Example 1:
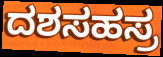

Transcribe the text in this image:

ದಶಸಹಸ್ರ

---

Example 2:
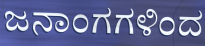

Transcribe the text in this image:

ಜನಾಂಗಗಳಿಂದ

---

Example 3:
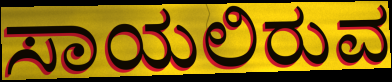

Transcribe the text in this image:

ಸಾಯಲಿರುವ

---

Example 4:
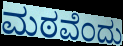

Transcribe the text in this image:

ಮಠವೆಂದು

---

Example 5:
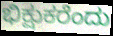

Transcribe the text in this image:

ಭಿಕ್ಷುಕರೆಂದು